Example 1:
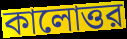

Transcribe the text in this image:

কালোত্তর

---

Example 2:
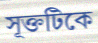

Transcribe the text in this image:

সূক্তটিকে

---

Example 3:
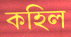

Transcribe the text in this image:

কহিল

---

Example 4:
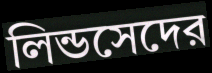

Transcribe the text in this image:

লিন্ডসেদের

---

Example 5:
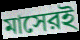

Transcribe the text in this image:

মাসেরই